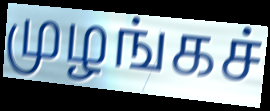
முழங்கச்